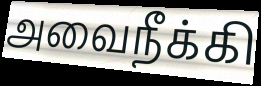
அவைநீக்கி